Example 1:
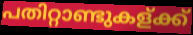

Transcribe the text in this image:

പതിറ്റാണ്ടുകള്ക്ക്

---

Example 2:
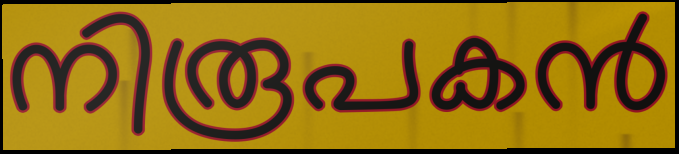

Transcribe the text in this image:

നിരൂപകൻ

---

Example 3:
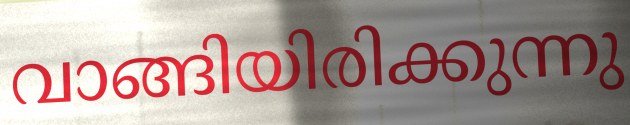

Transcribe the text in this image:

വാങ്ങിയിരിക്കുന്നു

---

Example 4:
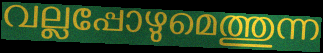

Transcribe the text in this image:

വല്ലപ്പോഴുമെത്തുന്ന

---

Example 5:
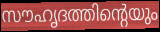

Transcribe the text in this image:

സൗഹൃദത്തിന്റെയും